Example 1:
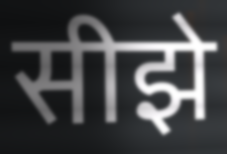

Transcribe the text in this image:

सीझे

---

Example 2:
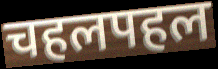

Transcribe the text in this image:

चहलपहल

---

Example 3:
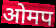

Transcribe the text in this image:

ओमप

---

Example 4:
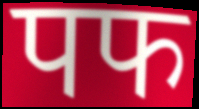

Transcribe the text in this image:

पफ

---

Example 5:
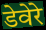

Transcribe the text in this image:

डेवेरे